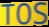
TOS